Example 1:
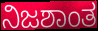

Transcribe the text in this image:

ನಿಜಶಾಂತ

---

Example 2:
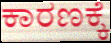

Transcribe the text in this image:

ಕಾರಣಕ್ಕೆ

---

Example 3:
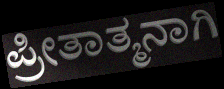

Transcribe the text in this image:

ಪ್ರೀತಾತ್ಮನಾಗಿ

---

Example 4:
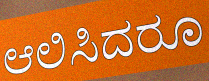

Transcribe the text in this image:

ಆಲಿಸಿದರೂ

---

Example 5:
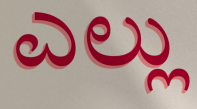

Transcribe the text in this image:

ಎಲ್ಲು